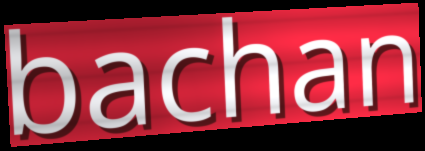
bachan